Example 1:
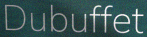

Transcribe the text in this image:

Dubuffet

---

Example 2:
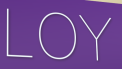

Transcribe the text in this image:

LOY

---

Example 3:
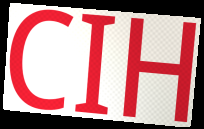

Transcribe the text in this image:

CIH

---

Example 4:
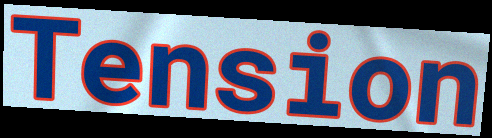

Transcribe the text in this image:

Tension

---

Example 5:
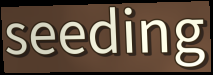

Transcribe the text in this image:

seeding